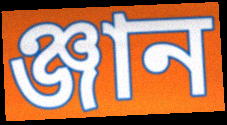
ঞ্জান